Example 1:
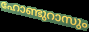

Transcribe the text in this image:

ഹോണ്ടുറാസും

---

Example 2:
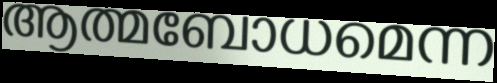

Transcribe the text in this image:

ആത്മബോധമെന്ന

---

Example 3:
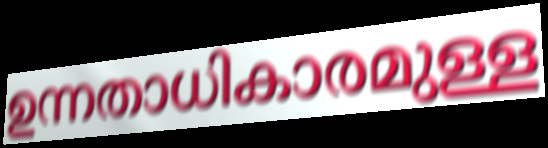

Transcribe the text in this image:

ഉന്നതാധികാരമുള്ള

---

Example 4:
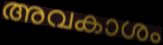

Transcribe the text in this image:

അവകാശം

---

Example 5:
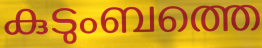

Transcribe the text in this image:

കുടുംബത്തെ